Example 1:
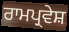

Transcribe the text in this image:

ਰਾਮਪ੍ਰਵੇਸ਼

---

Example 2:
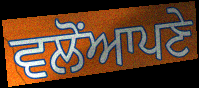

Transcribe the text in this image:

ਵਲੋਂਆਪਣੇ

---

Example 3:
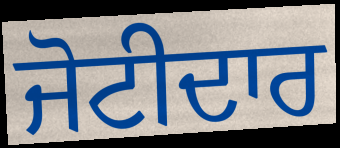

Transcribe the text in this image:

ਜੋਟੀਦਾਰ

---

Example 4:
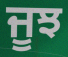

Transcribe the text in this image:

ਜੂਝ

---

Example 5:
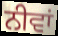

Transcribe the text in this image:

ਨੀਵਾਂ